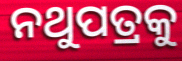
ନଥୁପତ୍ରକୁ